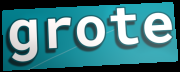
grote